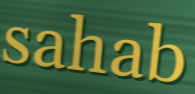
sahab